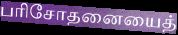
பரிசோதனையைத்